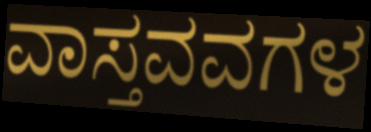
ವಾಸ್ತವವಗಳ